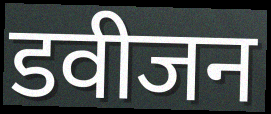
डवीजन